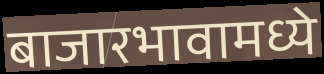
बाजारभावामध्ये